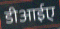
डीआईए